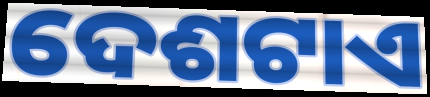
ଦେଶଟାଏ